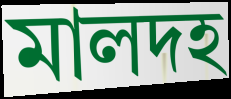
মালদহ